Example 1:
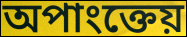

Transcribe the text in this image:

অপাংক্তেয়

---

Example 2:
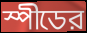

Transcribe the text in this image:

স্পীডের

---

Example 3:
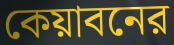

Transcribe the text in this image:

কেয়াবনের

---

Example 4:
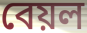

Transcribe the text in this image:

বেয়ল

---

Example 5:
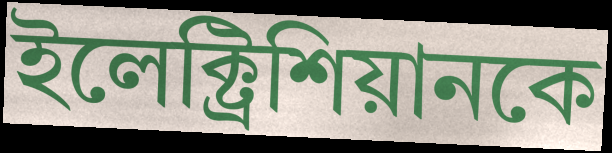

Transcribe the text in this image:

ইলেক্ট্রিশিয়ানকে